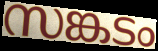
സങ്കടം